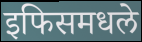
इफिसमधले